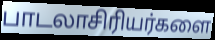
பாடலாசிரியர்களை